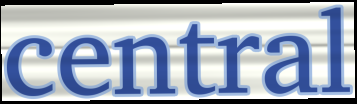
central